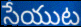
సేయుట